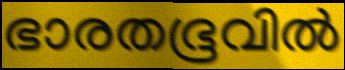
ഭാരതഭൂവിൽ